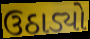
ઉઠાડ્યો